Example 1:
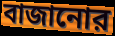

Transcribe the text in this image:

বাজানোর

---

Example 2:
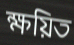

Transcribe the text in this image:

ক্ষয়িত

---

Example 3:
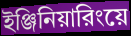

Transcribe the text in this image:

ইঞ্জিনিয়ারিংয়ে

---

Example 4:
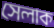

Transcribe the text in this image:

সেলাক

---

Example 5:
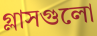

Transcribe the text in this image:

গ্লাসগুলো